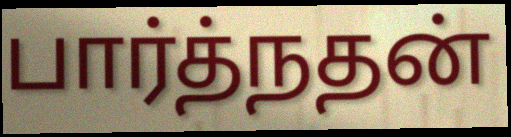
பார்த்நதன்